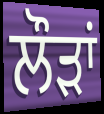
ਲੌੜਾਂ